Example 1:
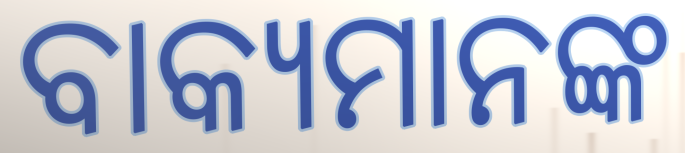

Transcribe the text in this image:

ବାକ୍ୟମାନଙ୍କ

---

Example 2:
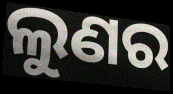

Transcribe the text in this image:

ଲୁଣର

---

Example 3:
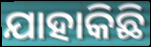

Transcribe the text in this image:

ଯାହାକିଛି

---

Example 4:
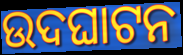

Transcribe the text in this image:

ଉଦଘାଟନ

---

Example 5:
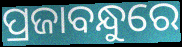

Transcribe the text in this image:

ପ୍ରଜାବନ୍ଧୁରେ